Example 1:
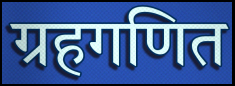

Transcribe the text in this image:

ग्रहगणित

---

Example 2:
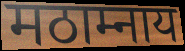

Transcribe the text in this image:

मठाम्नाय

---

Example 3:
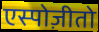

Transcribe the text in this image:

एस्पोज़ीतो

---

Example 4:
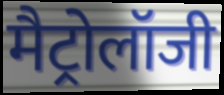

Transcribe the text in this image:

मैट्रोलॉजी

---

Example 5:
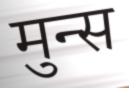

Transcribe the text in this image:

मुन्स